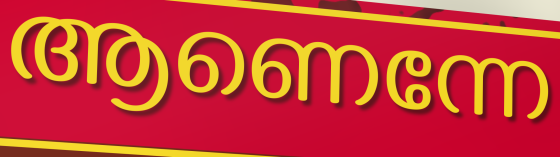
ആണെന്നേ